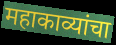
महाकाव्यांचा